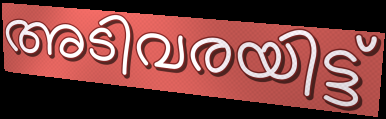
അടിവരയിട്ട്